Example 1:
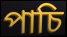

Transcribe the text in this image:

পাচি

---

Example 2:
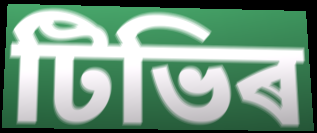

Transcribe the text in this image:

টিভিৰ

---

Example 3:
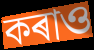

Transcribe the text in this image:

কৰাও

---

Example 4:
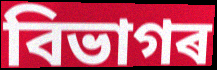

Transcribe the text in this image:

বিভাগৰ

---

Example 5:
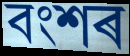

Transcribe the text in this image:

বংশৰ